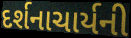
દર્શનાચાર્યની